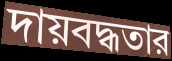
দায়বদ্ধতার